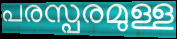
പരസ്പരമുള്ള